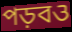
পড়বও